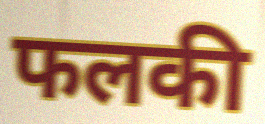
फलकी